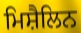
ਮਿਸ਼ੈਲਿਨ